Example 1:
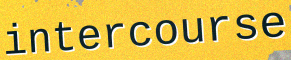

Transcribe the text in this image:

intercourse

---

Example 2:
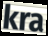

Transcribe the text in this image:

kra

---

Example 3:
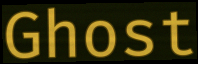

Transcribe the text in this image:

Ghost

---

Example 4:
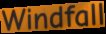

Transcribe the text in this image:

Windfall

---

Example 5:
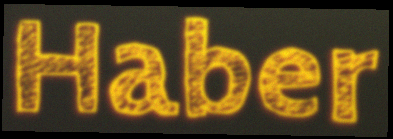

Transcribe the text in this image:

Haber